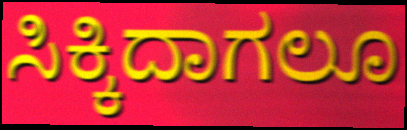
ಸಿಕ್ಕಿದಾಗಲೂ